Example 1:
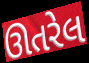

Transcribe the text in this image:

ઊતરેલ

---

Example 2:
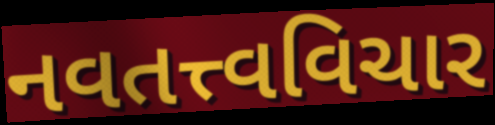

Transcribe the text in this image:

નવતત્ત્વવિચાર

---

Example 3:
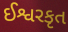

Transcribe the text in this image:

ઈશ્વરકૃત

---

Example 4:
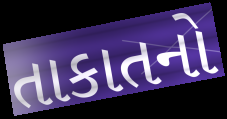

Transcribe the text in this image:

તાકાતનો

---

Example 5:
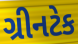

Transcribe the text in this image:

ગ્રીનટેક